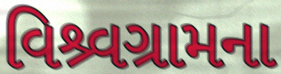
વિશ્ર્વગ્રામના